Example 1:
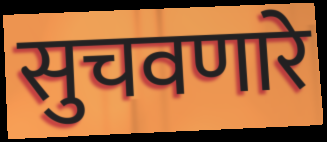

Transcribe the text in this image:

सुचवणारे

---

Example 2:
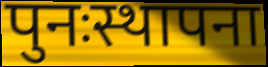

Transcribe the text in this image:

पुनःस्थापना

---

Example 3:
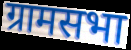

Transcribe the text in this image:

ग्रामसभा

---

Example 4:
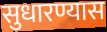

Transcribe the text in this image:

सुधारण्यास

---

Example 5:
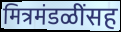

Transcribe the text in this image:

मित्रमंडळींसह